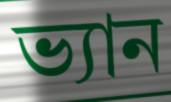
ভ্যান